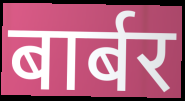
बार्बर